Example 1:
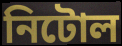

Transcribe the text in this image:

নিটোল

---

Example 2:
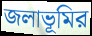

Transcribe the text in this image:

জলাভূমির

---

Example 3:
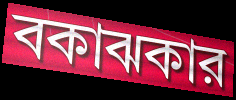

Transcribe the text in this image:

বকাঝকার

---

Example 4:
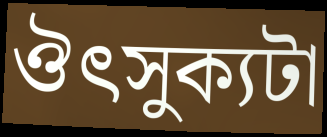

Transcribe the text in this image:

ঔৎসুক্যটা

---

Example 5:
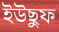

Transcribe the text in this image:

ইউছুফ